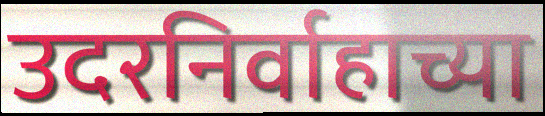
उदरनिर्वाहाच्या